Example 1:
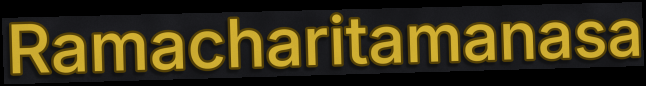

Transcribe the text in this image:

Ramacharitamanasa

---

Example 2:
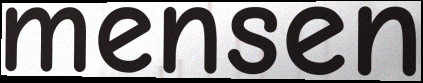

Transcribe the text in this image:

mensen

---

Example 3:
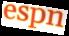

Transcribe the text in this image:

espn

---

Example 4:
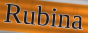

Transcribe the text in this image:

Rubina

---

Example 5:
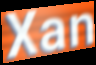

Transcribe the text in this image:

Xan